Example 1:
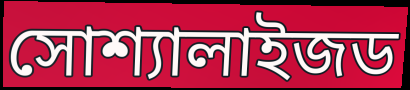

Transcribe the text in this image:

সোশ্যালাইজড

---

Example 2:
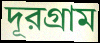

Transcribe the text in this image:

দূরগ্রাম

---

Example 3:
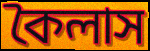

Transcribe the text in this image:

কৈলাস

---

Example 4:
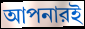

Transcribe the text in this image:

আপনারই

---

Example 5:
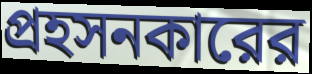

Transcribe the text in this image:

প্রহসনকারের